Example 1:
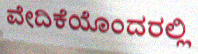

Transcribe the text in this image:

ವೇದಿಕೆಯೊಂದರಲ್ಲಿ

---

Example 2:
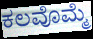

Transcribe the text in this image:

ಕಲವೊಮ್ಮೆ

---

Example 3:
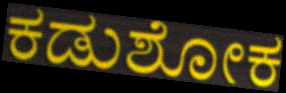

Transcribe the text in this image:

ಕಡುಶೋಕ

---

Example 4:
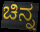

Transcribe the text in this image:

ಚಿನ್ನ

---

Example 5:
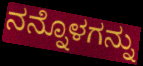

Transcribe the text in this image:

ನನ್ನೊಳಗನ್ನು